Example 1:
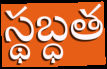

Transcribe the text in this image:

స్థబ్ధత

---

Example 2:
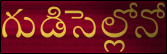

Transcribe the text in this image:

గుడిసెల్లోనో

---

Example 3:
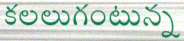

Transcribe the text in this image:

కలలుగంటున్న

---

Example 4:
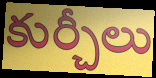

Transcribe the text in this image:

కుర్చీలు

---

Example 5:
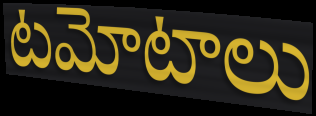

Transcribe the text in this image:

టమోటాలు